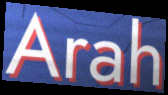
Arah